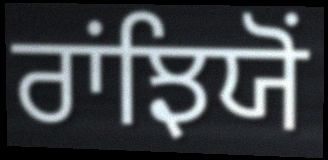
ਰਾਂਝਿਯੋਂ